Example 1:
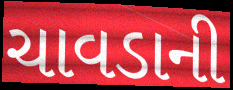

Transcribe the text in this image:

ચાવડાની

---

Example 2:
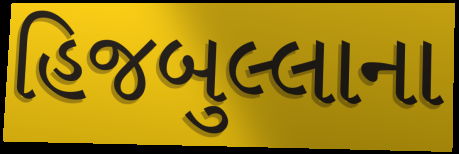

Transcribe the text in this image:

હિજબુલ્લાના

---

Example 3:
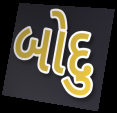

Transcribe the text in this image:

બોદુ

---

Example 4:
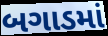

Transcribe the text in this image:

બગાડમાં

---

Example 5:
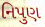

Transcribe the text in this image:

નિપુણ